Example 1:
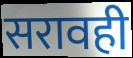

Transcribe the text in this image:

सरावही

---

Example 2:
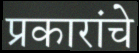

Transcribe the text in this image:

प्रकारांचे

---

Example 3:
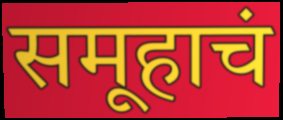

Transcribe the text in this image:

समूहाचं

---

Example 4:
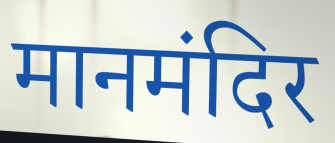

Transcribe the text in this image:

मानमंदिर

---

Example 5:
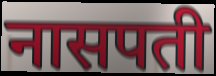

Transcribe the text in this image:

नासपती